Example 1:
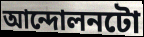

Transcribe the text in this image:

আন্দোলনটো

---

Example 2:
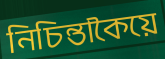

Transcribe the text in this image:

নিচিন্তাকৈয়ে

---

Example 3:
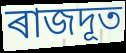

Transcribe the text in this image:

ৰাজদূত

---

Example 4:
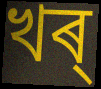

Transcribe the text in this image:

খৰ্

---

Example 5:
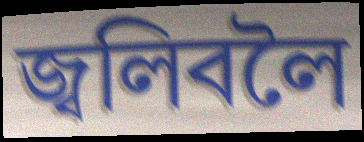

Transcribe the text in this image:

জ্বলিবলৈ